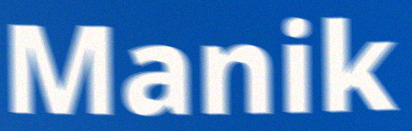
Manik